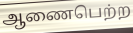
ஆணைபெற்ற